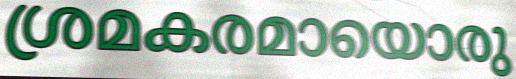
ശ്രമകരമായൊരു